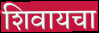
शिवायचा